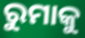
ରୁମାକୁ